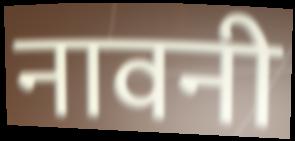
नावनी